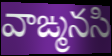
వాఙ్మనసి